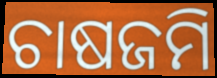
ଚାଷଜମି